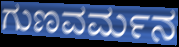
ಗುಣವರ್ಮನ